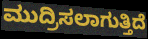
ಮುದ್ರಿಸಲಾಗುತ್ತಿದೆ